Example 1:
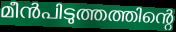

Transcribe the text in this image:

മീൻപിടുത്തത്തിന്റെ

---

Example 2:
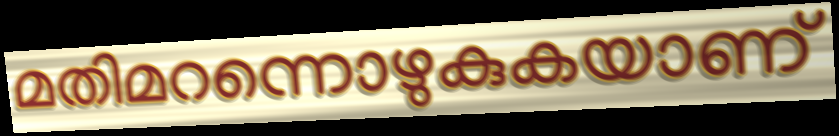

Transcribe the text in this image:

മതിമറന്നൊഴുകുകയാണ്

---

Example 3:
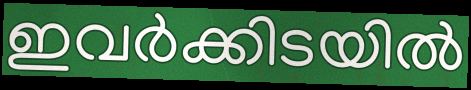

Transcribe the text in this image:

ഇവർക്കിടയിൽ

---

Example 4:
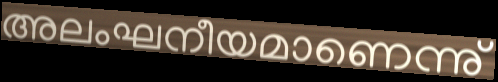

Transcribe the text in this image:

അലംഘനീയമാണെന്നു്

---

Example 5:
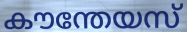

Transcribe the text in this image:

കൗന്തേയസ്